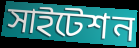
সাইটেশন